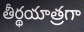
తీర్థయాత్రగా